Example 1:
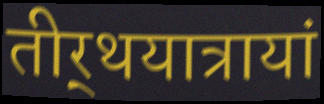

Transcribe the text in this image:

तीर्थयात्रायां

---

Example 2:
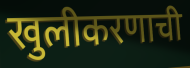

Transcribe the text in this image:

खुलीकरणाची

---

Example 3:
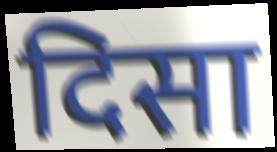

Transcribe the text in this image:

दिसा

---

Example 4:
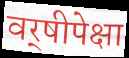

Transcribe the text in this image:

वर्षीपेक्षा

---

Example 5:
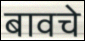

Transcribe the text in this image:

बावचे